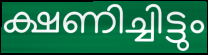
ക്ഷണിച്ചിട്ടും